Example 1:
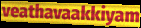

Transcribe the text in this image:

veathavaakkiyam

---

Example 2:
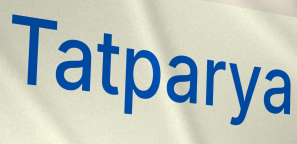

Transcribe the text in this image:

Tatparya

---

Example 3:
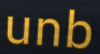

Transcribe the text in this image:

unb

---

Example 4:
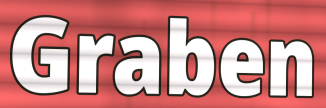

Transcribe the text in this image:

Graben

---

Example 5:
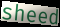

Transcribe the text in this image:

sheed